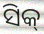
ସିକ୍